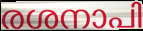
രശനാപി